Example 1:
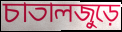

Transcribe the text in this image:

চাতালজুড়ে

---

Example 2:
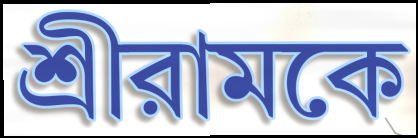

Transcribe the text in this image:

শ্রীরামকে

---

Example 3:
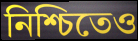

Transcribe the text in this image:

নিশ্চিতেও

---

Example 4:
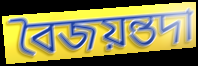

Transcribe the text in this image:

বৈজয়ন্তদা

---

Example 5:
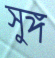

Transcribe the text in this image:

সুঙ্গ